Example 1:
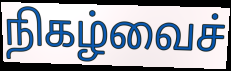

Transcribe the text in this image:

நிகழ்வைச்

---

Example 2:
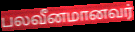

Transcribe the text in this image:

பலவீனமானவர்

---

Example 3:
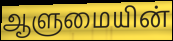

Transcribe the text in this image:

ஆளுமையின்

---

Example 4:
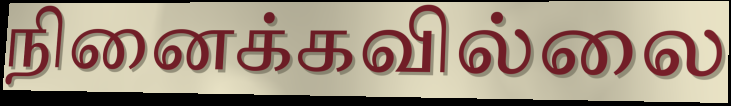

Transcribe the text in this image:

நினைக்கவில்லை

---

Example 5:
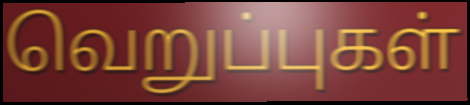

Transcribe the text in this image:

வெறுப்புகள்